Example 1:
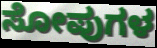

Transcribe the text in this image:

ಸೋಪುಗಳ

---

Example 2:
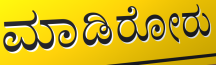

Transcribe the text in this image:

ಮಾಡಿರೋರು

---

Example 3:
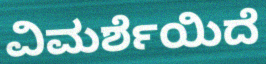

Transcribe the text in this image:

ವಿಮರ್ಶೆಯಿದೆ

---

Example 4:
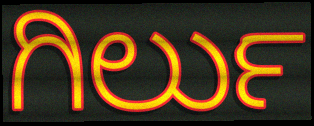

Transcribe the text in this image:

ಗಿರ್ಲು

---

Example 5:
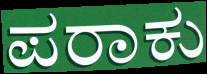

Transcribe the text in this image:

ಪರಾಕು